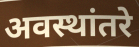
अवस्थांतरे